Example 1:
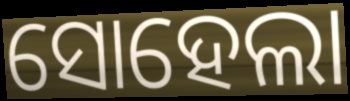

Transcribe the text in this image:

ସୋହେଲା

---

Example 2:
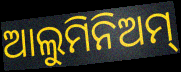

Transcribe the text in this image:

ଆଲୁମିନିଅମ୍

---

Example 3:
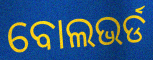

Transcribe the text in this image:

ବୋଲଭର୍ଡ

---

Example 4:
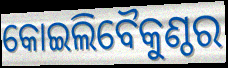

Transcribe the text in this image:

କୋଇଲିବୈକୁଣ୍ଠର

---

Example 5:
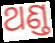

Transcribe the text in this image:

ଥଣ୍ଡ